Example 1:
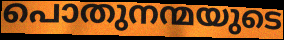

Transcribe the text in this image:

പൊതുനന്മയുടെ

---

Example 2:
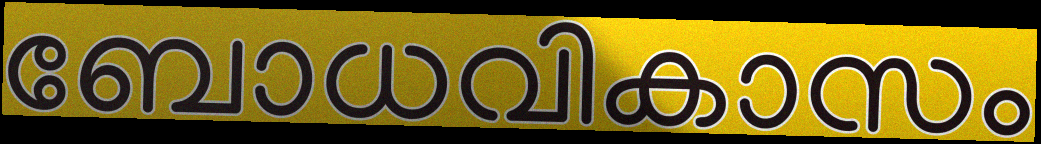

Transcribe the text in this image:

ബോധവികാസം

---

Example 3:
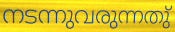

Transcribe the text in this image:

നടന്നുവരുന്നതു്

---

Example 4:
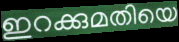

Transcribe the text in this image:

ഇറക്കുമതിയെ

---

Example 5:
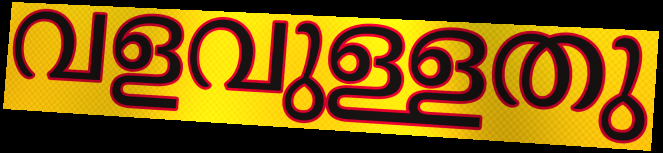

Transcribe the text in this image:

വളവുള്ളതു